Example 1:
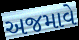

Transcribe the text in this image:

અજમાવે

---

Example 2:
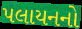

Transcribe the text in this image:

પલાયનનો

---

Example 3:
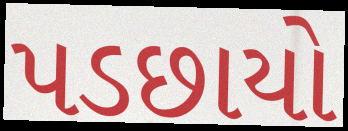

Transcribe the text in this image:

પડછાયો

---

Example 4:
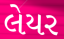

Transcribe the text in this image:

લેયર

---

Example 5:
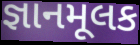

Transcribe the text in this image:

જ્ઞાનમૂલક